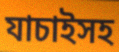
যাচাইসহ